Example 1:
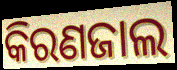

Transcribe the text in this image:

କିରଣଜାଲ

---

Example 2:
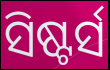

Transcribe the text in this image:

ସିଷ୍ଟର୍ସ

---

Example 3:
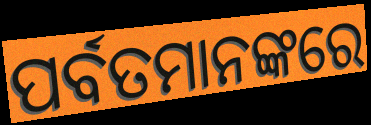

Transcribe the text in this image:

ପର୍ବତମାନଙ୍କରେ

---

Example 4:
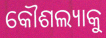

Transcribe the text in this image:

କୌଶଲ୍ୟାକୁ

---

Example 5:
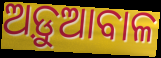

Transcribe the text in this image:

ଅଡ଼ୁଆବାଳ